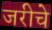
जरीचे